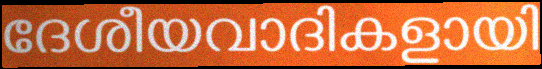
ദേശീയവാദികളായി